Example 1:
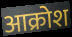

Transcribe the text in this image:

आक्रोश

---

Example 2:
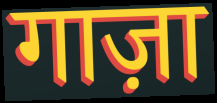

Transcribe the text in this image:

गाज़ा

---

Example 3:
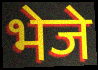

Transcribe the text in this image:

भेजे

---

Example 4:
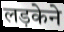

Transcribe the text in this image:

लड़केने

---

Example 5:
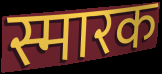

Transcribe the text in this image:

स्मारक